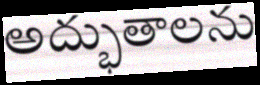
అద్భుతాలను